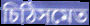
চিঠিসমেত